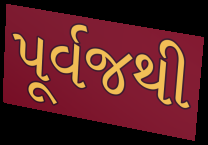
પૂર્વજથી